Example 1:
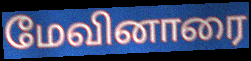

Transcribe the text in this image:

மேவினாரை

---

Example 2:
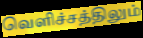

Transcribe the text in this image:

வெளிச்சத்திலும்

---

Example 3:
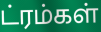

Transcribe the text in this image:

ட்ரம்கள்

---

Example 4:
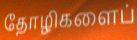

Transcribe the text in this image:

தோழிகளைப்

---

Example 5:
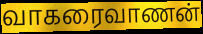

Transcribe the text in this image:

வாகரைவாணன்